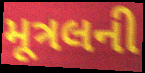
મૂત્રલની